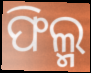
ଫିଲ୍ମ